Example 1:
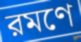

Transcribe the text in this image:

রমণে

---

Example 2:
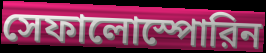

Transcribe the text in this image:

সেফালোস্পোরিন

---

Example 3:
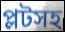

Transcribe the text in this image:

প্লটসহ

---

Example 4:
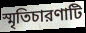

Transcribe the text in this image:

স্মৃতিচারণাটি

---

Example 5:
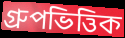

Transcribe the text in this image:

গ্রুপভিত্তিক